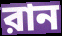
রান